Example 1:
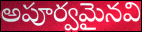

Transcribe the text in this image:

అపూర్వమైనవి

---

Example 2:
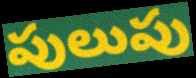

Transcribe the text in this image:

పులుపు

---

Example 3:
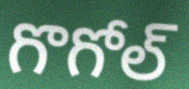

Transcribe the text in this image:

గొగోల్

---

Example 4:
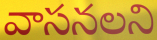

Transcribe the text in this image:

వాసనలని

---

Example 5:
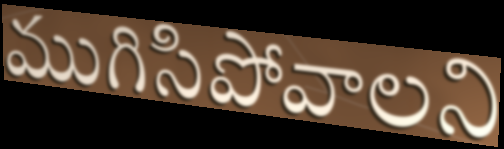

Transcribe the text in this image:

ముగిసిపోవాలని